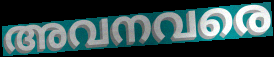
അവനവരെ